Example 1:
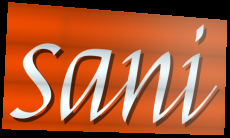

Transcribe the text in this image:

sani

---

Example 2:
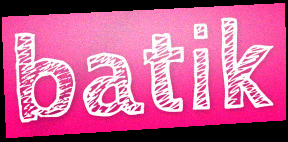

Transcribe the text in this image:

batik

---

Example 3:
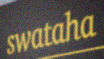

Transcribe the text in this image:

swataha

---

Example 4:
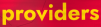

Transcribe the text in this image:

providers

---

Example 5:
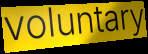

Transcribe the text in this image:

voluntary